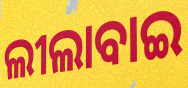
ଲୀଲାବାଇ